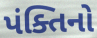
પંક્તિનો